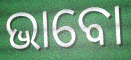
ଭାବୋ